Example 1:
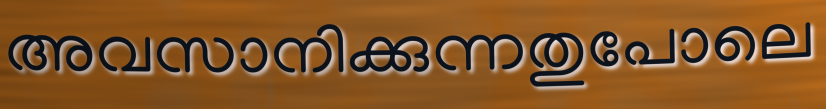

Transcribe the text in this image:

അവസാനിക്കുന്നതുപോലെ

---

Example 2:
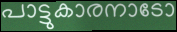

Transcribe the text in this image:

പാട്ടുകാരനാടോ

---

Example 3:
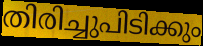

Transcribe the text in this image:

തിരിച്ചുപിടിക്കും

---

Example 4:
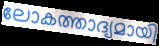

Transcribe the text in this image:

ലോകത്താദ്യമായി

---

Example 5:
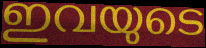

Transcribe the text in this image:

ഇവയുടെ